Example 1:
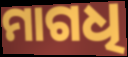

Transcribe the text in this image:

ମାଗଧି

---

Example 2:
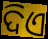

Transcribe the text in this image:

ଦିଏ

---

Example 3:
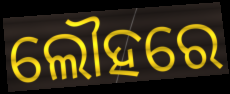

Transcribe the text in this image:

ଲୌହରେ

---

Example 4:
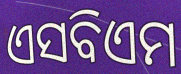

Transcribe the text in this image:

ଏସବିଏମ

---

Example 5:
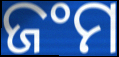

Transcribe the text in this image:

ଜଂମ